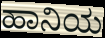
ಹಾನಿಯ